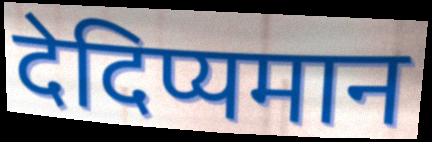
देदिप्यमान